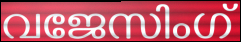
വജേസിംഗ്